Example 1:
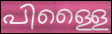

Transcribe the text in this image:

പിള്ളൈ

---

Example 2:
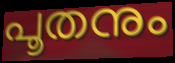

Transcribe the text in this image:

പൂതനും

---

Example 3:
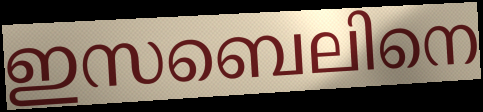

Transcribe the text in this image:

ഇസബെലിനെ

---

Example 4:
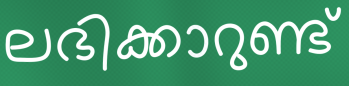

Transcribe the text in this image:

ലഭിക്കാറുണ്ട്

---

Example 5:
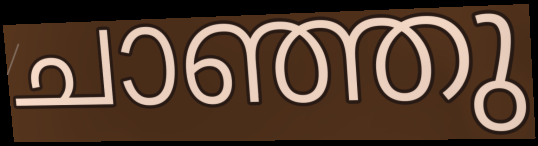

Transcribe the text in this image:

ചാഞ്ഞു